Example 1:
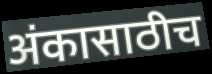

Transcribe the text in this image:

अंकासाठीच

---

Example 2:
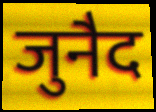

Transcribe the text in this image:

जुनैद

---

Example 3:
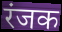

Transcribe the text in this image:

रंजक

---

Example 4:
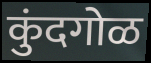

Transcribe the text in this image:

कुंदगोळ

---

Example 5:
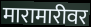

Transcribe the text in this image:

मारामारीवर